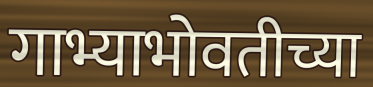
गाभ्याभोवतीच्या